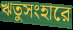
ঋতুসংহারে